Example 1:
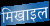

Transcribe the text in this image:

मिखाइल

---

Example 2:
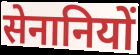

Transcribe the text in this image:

सेनानियों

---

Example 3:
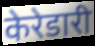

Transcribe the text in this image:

केरेडारी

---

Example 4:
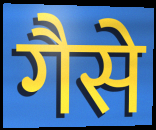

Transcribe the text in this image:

गैसे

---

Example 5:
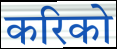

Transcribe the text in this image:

करिको